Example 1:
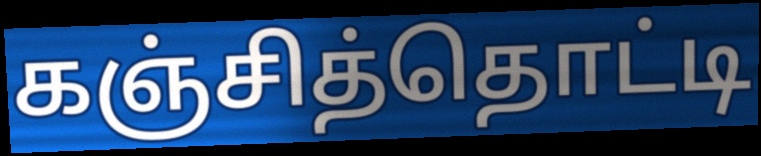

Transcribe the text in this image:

கஞ்சித்தொட்டி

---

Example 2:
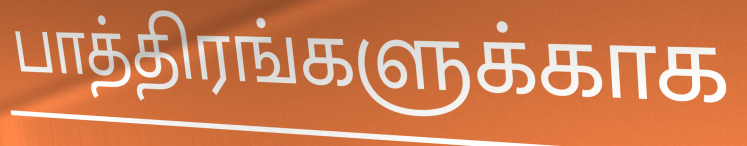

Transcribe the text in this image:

பாத்திரங்களுக்காக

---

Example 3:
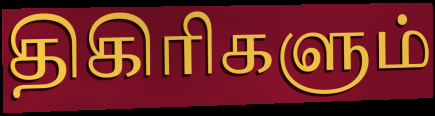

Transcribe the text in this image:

திகிரிகளும்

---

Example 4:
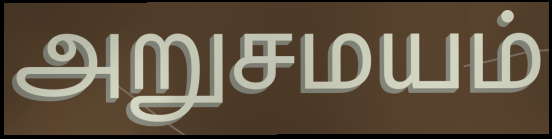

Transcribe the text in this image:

அறுசமயம்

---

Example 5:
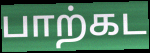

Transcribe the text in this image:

பாற்கட